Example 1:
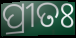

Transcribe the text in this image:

ପ୍ରୀତଃ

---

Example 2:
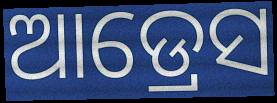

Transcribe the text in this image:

ଆଡ୍ରେସ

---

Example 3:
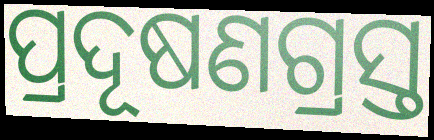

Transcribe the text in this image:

ପ୍ରଦୂଷଣଗ୍ରସ୍ତ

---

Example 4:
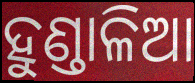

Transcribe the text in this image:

ହୁଣ୍ଡାଳିଆ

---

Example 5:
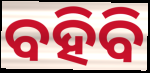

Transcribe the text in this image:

ବହିବି